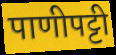
पाणीपट्टी